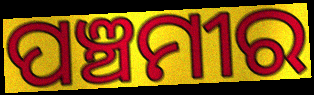
ପଞ୍ଚମୀର